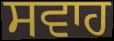
ਸਵਾਹ